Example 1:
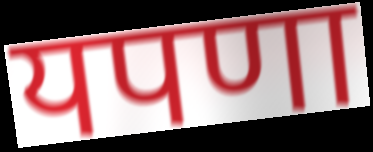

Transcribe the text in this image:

यपणा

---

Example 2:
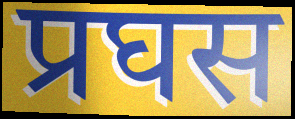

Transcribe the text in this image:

प्रघस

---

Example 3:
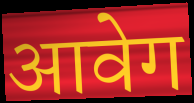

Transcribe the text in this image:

आवेग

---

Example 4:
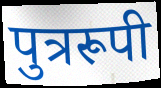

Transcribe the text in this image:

पुत्ररूपी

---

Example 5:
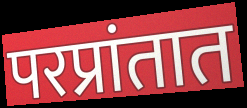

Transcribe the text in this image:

परप्रांतात